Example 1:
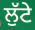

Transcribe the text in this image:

ਲੁੱਟੇ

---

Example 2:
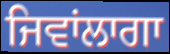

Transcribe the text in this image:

ਜਿਵਾਂਲਾਗਾ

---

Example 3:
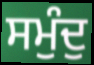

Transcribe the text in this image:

ਸਮੁੰਦੁ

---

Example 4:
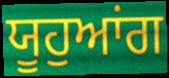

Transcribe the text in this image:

ਯੂਹੁਆਂਗ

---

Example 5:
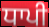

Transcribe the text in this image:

ਧਾਪੀ